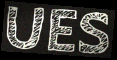
UES